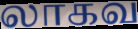
லாகவ